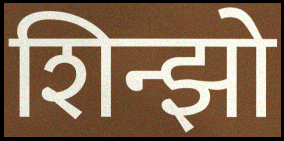
शिन्झो